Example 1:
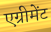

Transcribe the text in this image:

एग्रीमेंट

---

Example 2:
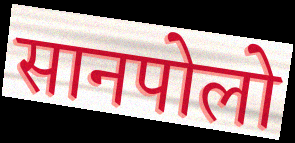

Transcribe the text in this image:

सानपोलो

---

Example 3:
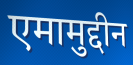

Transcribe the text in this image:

एमामुद्दीन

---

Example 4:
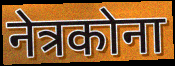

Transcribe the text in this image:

नेत्रकोना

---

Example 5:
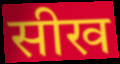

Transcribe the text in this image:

सीख